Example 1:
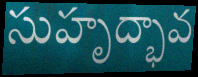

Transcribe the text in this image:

సుహృద్భావ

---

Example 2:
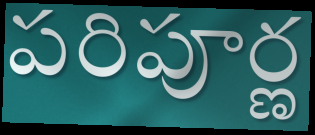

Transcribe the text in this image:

పరిపూర్ణ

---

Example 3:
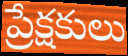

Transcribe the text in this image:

ప్రేక్షకులు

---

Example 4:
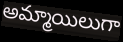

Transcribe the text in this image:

అమ్మాయిలుగా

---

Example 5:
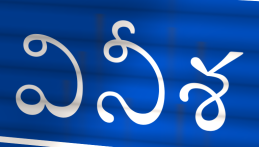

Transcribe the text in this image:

వినీశ